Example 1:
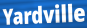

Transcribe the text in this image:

Yardville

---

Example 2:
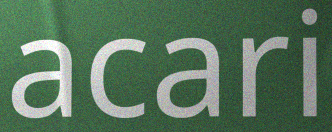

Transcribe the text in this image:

acari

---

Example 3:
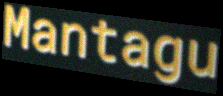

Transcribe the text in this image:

Mantagu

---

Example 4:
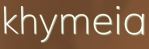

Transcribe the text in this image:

khymeia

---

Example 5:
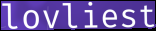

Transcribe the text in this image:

lovliest